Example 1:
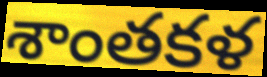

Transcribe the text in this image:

శాంతకళ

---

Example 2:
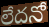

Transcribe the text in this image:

లేదనో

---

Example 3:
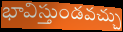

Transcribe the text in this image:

భావిస్తుండవచ్చు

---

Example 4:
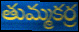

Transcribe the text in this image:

తుమ్మకర్ర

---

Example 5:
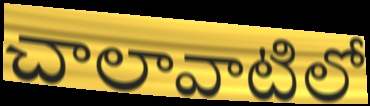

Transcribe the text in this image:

చాలావాటిలో